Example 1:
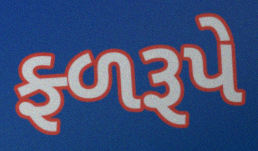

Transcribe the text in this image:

ફ્ળરૂપે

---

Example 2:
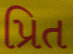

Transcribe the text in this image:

પ્રિત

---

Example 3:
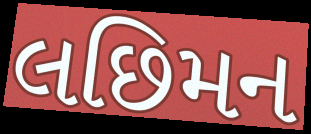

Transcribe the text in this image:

લછિમન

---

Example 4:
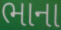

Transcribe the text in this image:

ભાના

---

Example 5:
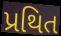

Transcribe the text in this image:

પ્રથિત